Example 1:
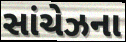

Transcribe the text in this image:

સાંચેઝના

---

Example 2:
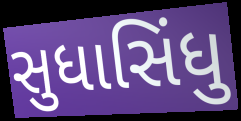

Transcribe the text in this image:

સુધાસિંધુ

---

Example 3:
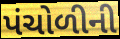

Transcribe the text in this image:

પંચોળીની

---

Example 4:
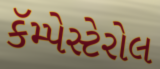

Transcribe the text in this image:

કૅમ્પેસ્ટેરોલ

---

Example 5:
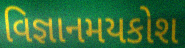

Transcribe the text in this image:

વિજ્ઞાનમયકોશ